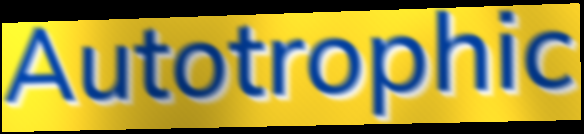
Autotrophic